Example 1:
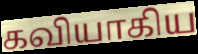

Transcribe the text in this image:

கவியாகிய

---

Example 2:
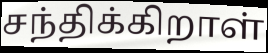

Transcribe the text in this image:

சந்திக்கிறாள்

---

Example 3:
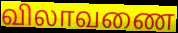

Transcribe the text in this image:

விலாவணை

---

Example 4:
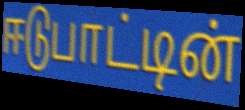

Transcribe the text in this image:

ஈடுபாட்டின்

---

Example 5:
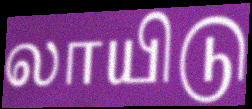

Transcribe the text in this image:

லாயிடு